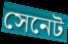
সেনেট